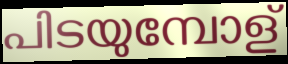
പിടയുമ്പോള്